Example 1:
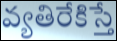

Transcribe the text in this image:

వ్యతిరేకిస్తే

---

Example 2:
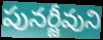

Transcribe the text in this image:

పునర్జీవుని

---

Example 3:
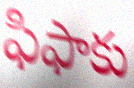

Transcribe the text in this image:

ఫిఫాకు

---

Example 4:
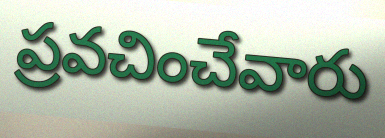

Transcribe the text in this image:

ప్రవచించేవారు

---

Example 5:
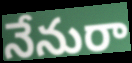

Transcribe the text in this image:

నేనురా